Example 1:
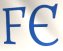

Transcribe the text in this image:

FE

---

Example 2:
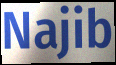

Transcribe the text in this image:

Najib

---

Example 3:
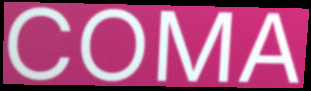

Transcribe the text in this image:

COMA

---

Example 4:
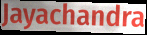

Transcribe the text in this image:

Jayachandra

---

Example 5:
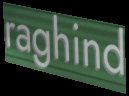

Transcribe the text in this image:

raghind